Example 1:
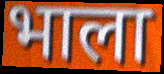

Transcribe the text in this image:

भाला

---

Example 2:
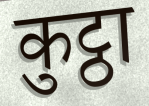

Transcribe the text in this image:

कुट्ठा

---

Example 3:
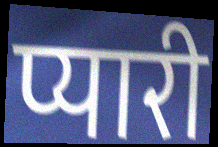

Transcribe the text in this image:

प्यारी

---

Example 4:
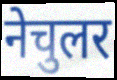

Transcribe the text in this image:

नेचुलर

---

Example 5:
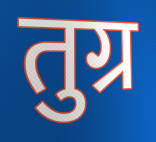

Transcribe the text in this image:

तुग्र